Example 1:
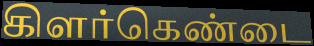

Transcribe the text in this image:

கிளர்கெண்டை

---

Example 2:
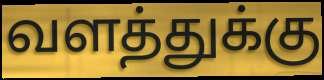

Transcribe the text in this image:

வளத்துக்கு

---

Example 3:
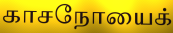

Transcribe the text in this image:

காசநோயைக்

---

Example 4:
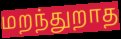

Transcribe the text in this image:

மறந்துறாத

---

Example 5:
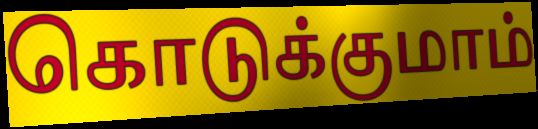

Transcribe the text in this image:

கொடுக்குமாம்